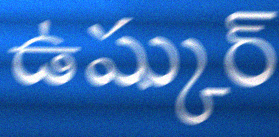
ఉష్కుర్